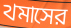
থমাসের